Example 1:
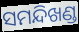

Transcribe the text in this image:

ସମନ୍ଦିଖଣ୍ଡ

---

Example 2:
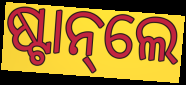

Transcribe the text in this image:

ଷ୍ଟାନ୍‌ଲେ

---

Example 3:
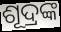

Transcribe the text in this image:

ଶୂଦ୍ରଙ୍କ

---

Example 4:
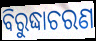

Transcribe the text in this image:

ବିରୁଦ୍ଧାଚରଣ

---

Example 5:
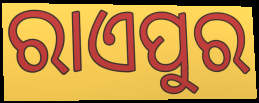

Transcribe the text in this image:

ରାଏପୁର